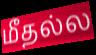
மீதல்ல